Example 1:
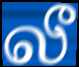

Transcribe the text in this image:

லீ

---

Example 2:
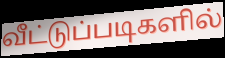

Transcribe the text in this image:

வீட்டுப்படிகளில்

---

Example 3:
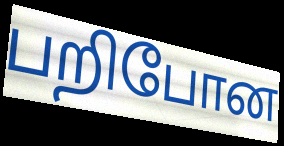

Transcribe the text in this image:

பறிபோன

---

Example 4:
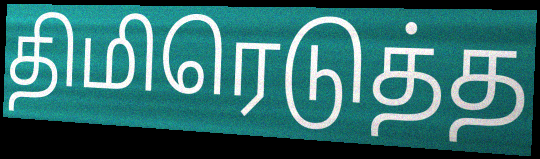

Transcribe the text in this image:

திமிரெடுத்த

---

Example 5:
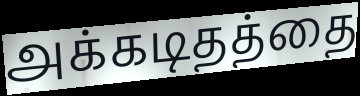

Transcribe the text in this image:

அக்கடிதத்தை